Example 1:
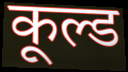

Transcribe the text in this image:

कूल्ड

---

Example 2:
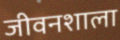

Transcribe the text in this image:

जीवनशाला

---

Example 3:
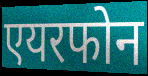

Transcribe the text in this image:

एयरफोन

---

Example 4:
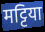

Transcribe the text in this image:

मट्टिया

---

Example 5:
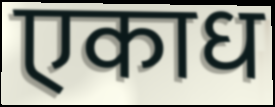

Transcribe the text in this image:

एकाध